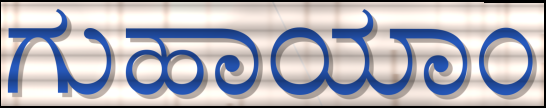
ಗುಹಾಯಾಂ